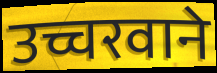
उच्चरवाने